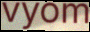
vyom